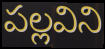
పల్లవిని